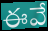
ఈవే